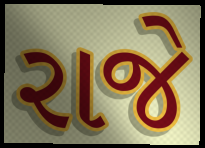
રાજે